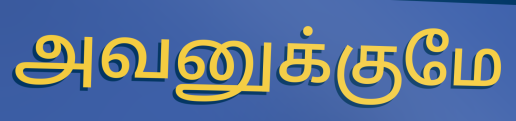
அவனுக்குமே